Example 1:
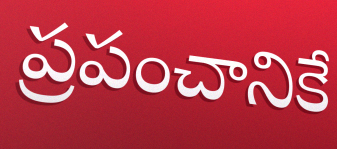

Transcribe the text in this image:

ప్రపంచానికే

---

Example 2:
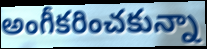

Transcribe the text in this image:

అంగీకరించకున్నా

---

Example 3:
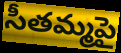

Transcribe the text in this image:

సీతమ్మపై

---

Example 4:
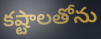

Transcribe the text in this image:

కష్టాలతోను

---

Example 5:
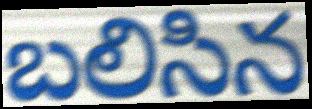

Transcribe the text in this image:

బలిసిన